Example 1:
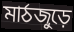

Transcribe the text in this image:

মাঠজুড়ে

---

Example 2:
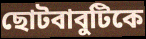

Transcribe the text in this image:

ছোটবাবুটিকে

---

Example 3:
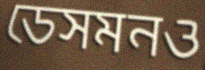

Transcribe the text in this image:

ডেসমনও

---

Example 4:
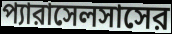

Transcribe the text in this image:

প্যারাসেলসাসের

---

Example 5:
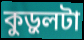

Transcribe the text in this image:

কুড়ুলটা